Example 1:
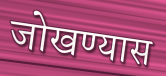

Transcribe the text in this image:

जोखण्यास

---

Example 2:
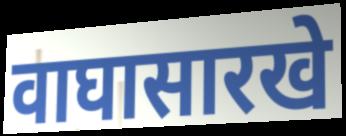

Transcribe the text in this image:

वाघासारखे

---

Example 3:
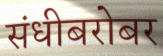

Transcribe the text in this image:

संधीबरोबर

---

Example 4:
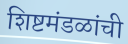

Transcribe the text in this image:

शिष्टमंडळांची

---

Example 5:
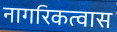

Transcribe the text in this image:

नागरिकत्वास